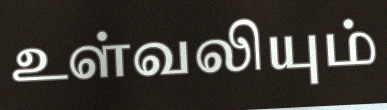
உள்வலியும்